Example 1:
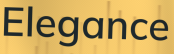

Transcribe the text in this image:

Elegance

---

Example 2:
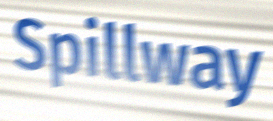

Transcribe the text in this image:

Spillway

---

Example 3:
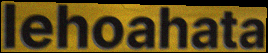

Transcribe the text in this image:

Iehoahata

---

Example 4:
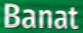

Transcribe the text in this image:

Banat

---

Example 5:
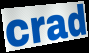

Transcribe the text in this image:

crad